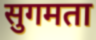
सुगमता